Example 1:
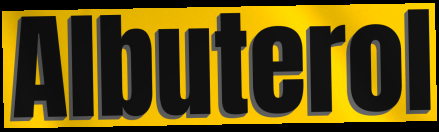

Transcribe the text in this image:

Albuterol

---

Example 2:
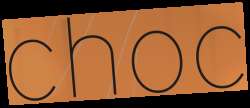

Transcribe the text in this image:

choc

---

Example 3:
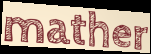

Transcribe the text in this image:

mather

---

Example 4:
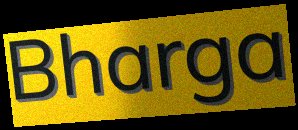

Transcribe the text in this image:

Bharga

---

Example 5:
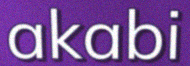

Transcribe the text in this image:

akabi